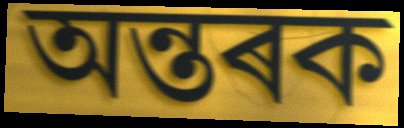
অন্তৰক